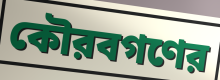
কৌরবগণের